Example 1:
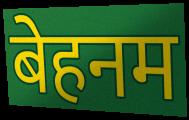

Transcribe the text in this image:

बेहनम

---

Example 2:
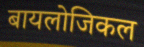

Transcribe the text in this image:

बायलोजिकल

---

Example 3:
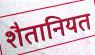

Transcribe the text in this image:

शैतानियत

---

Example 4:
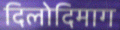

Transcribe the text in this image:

दिलोदिमाग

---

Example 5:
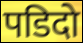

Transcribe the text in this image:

पडिदो